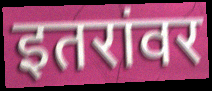
इतरांवर